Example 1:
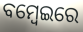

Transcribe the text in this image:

ବମ୍ବେଇରେ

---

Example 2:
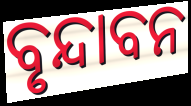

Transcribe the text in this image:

ବୃନ୍ଦାବନ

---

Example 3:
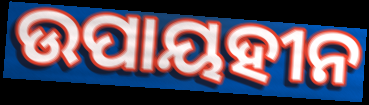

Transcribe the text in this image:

ଉପାୟହୀନ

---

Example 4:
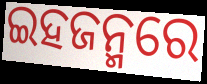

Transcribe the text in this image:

ଇହଜନ୍ମରେ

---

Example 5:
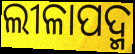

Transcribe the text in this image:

ଲୀଳାପଦ୍ମ